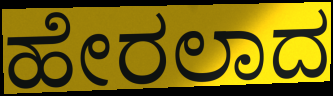
ಹೇರಲಾದ